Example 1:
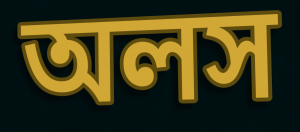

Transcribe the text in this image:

অলস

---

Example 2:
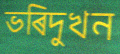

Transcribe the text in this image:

ভৰিদুখন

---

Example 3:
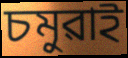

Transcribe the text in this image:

চমুৱাই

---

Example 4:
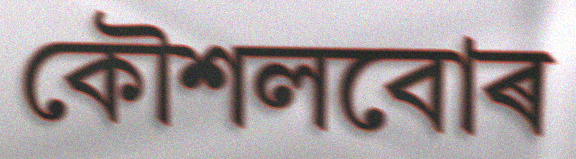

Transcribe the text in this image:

কৌশলবোৰ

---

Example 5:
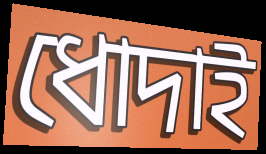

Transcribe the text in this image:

ধোদাই